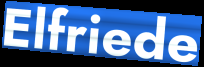
Elfriede